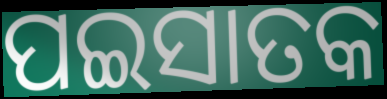
ପଇସାତକ